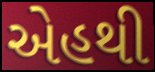
એહથી